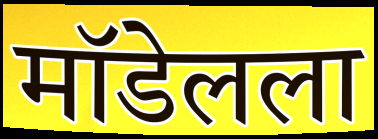
मॉडेलला